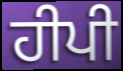
ਹੀਪੀ